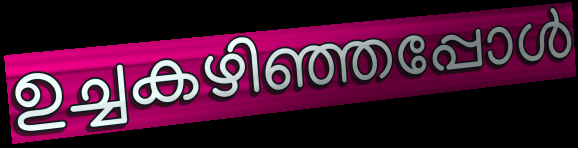
ഉച്ചകഴിഞ്ഞപ്പോൾ